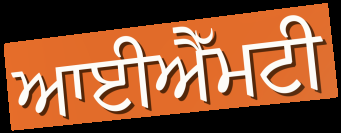
ਆਈਐੱਮਟੀ